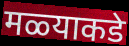
मळ्याकडे